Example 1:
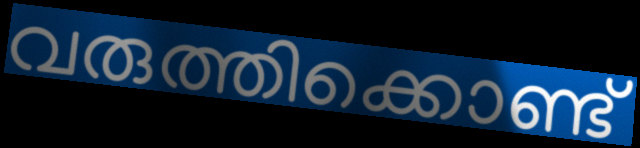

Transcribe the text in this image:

വരുത്തിക്കൊണ്ട്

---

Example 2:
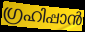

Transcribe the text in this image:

ഗ്രഹിപ്പാൻ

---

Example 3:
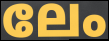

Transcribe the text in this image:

ലേം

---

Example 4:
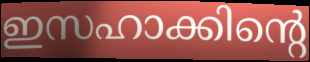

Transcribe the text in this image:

ഇസഹാക്കിന്റെ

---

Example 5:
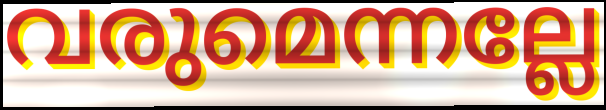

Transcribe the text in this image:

വരുമെന്നല്ലേ